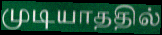
முடியாததில்